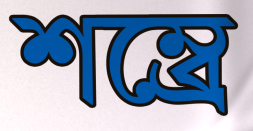
শম্ব্রে